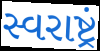
સ્વરાષ્ટ્રં